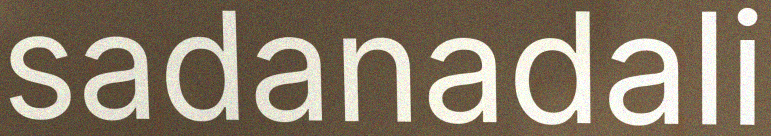
sadanadali